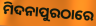
ମିଦନାପୁରଠାରେ